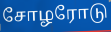
சோழரோடு